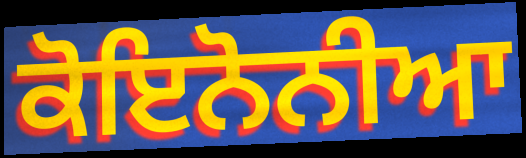
ਕੋਇਨੋਨੀਆ